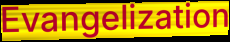
Evangelization